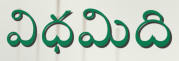
విధమిది